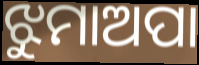
ଝୁମାଅପା